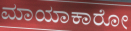
ಮಾಯಾಕಾರೋ